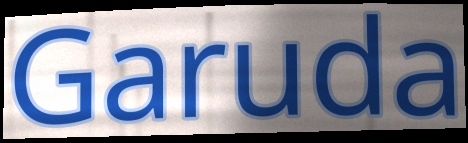
Garuda